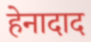
हेनादाद